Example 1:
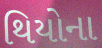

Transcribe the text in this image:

થિયોના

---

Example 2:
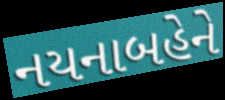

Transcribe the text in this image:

નયનાબહેને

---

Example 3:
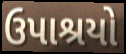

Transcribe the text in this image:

ઉપાશ્રયો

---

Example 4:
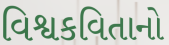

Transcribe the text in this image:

વિશ્વકવિતાનો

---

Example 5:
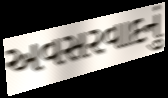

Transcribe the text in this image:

અવસરવાદનું